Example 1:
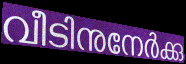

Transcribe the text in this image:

വീടിനുനേർക്കു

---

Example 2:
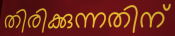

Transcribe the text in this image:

തിരിക്കുന്നതിന്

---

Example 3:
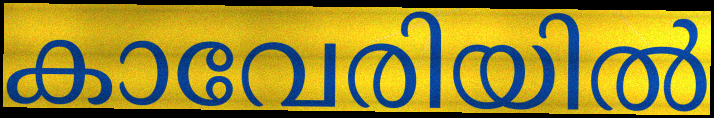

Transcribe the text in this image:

കാവേരിയിൽ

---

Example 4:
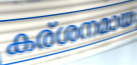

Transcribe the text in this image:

കര്ശനമായ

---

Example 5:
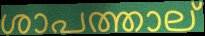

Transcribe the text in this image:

ശാപത്താല്